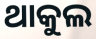
ଥାକୁଲ